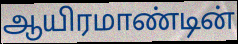
ஆயிரமாண்டின்